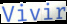
Vivir